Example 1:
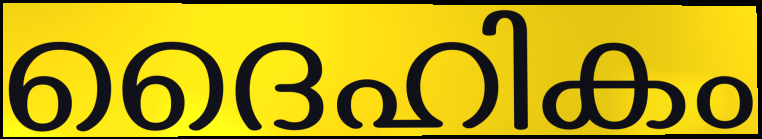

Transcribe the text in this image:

ദൈഹികം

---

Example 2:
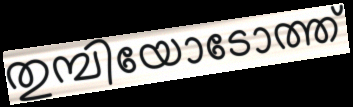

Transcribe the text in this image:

തുമ്പിയോടോത്ത്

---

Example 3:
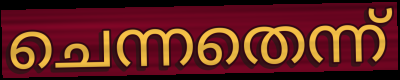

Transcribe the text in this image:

ചെന്നതെന്ന്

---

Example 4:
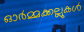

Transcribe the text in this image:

ഓർമ്മക്കല്ലുകൾ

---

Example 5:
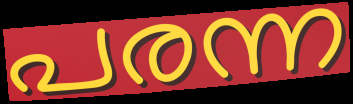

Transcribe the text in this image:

പരന്ന